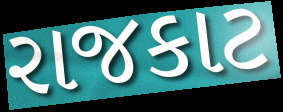
રાજકાટ